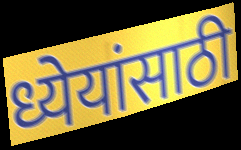
ध्येयांसाठी